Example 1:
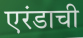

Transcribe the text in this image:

एरंडाची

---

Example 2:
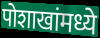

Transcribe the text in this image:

पोशाखांमध्ये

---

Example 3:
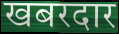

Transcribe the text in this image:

खबरदार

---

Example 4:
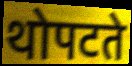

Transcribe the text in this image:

थोपटते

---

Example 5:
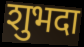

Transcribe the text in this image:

शुभदा